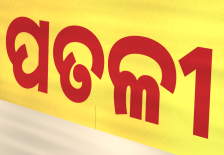
ପତଳୀ